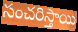
సంచరిస్తాయి